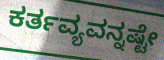
ಕರ್ತವ್ಯವನ್ನಷ್ಟೇ